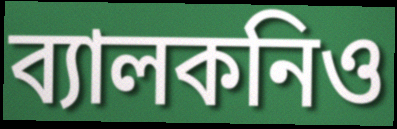
ব্যালকনিও